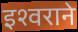
इश्वराने